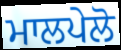
ਮਾਲਪੇਲੋ